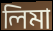
লিমা